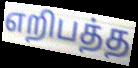
எறிபத்த